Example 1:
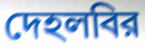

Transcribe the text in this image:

দেহলবির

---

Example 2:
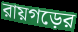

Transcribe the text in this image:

রায়গড়ের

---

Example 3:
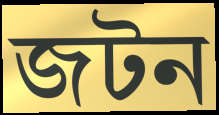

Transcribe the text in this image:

জটন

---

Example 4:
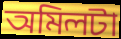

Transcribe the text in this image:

অমিলটা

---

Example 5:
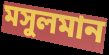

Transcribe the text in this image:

মসুলমান